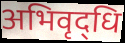
अभिवृद्धि